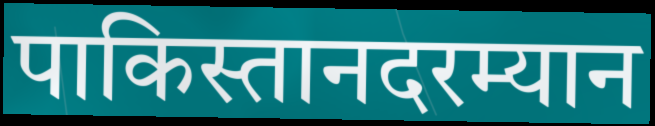
पाकिस्तानदरम्यान